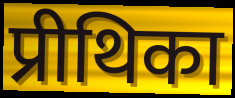
प्रीथिका